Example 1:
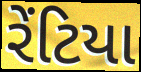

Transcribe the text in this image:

રેંટિયા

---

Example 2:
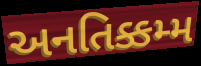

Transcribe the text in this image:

અનતિક્કમ્મ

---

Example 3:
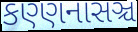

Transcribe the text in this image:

કણ્ણનાસઞ્ચ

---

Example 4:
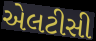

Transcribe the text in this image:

એલટીસી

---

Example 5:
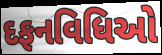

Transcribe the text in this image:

દફનવિધિઓ